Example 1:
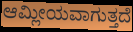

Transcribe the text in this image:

ಆಮ್ಲೀಯವಾಗುತ್ತದೆ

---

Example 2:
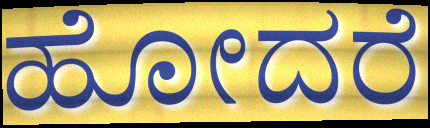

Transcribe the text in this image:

ಹೋದರೆ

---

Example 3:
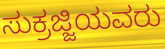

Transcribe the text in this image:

ಸುಕ್ರಜ್ಜಿಯವರು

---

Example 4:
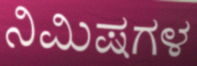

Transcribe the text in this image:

ನಿಮಿಷಗಳ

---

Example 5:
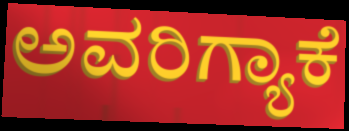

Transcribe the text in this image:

ಅವರಿಗ್ಯಾಕೆ